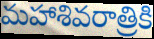
మహాశివరాత్రికి